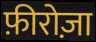
फ़ीरोज़ा